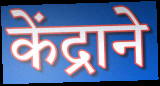
केंद्राने